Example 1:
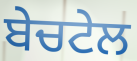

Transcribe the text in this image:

ਬੇਚਟੇਲ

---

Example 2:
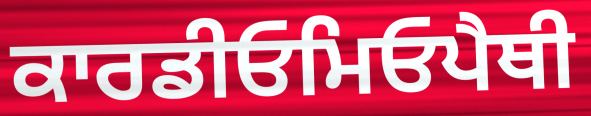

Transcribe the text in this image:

ਕਾਰਡੀਓਮਿਓਪੈਥੀ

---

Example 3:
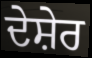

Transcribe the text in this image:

ਦੇਸ਼ੇਰ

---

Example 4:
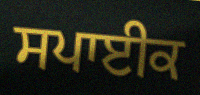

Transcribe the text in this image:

ਸਪਾਈਕ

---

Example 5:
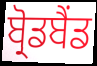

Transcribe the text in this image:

ਬ੍ਰੋਡਬੈਂਡ